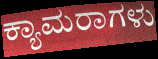
ಕ್ಯಾಮರಾಗಳು